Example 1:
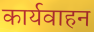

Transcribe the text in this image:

कार्यवाहन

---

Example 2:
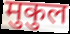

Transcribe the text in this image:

मुकुल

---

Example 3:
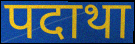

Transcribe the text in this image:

पदाथा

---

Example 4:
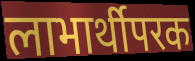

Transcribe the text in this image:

लाभार्थीपरक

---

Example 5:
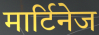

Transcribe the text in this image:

मार्टिनेज